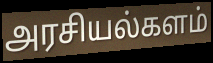
அரசியல்களம்